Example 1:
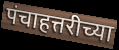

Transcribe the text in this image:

पंचाहत्तरीच्या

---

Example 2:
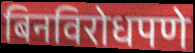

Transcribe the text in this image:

बिनविरोधपणे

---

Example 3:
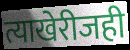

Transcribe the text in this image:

त्याखेरीजही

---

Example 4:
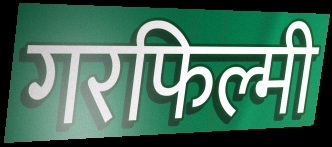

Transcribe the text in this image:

गरफिल्मी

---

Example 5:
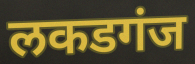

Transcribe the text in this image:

लकडगंज